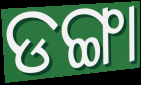
ଡଙ୍ଗା